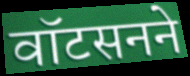
वॉटसनने